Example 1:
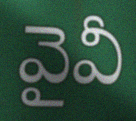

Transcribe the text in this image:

వైవీ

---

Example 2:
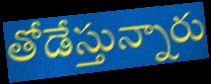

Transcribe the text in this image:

తోడేస్తున్నారు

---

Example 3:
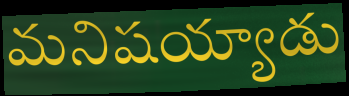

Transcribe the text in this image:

మనిషయ్యాడు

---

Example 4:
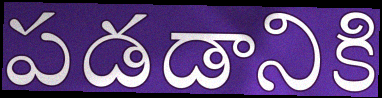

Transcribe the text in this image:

పడడానికి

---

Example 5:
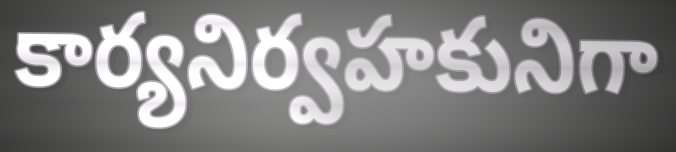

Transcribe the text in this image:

కార్యనిర్వహకునిగా